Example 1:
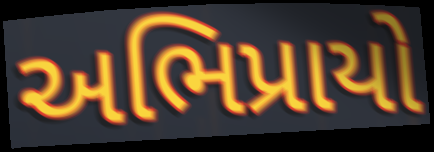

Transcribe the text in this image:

અભિપ્રાયો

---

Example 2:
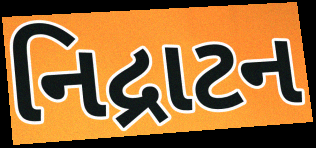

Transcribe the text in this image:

નિદ્રાટન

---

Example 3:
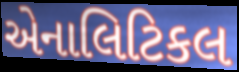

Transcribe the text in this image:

એનાલિટિકલ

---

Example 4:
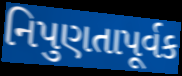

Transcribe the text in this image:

નિપુણતાપૂર્વક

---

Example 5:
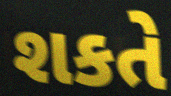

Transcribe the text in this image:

શકતે